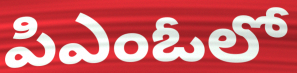
పిఎంఓలో